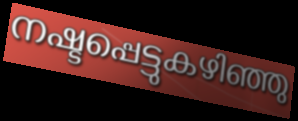
നഷ്ടപ്പെട്ടുകഴിഞ്ഞു